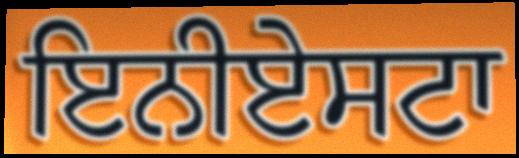
ਇਨੀਏਸਟਾ